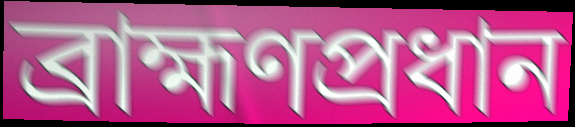
ব্রাহ্মণপ্রধান